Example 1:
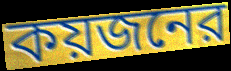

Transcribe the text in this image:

কয়জনের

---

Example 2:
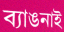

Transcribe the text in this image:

ব্যাঙনাই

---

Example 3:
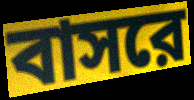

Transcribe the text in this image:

বাসরে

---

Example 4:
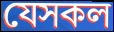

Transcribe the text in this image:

যেসকল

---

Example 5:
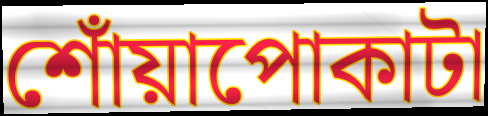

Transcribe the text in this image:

শোঁয়াপোকাটা